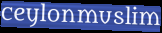
ceylonmuslim